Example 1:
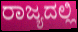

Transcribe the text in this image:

ರಾಜ್ಯದಲ್ಲಿ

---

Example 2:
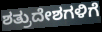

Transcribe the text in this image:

ಶತ್ರುದೇಶಗಳಿಗೆ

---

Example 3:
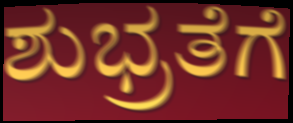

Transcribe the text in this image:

ಶುಭ್ರತೆಗೆ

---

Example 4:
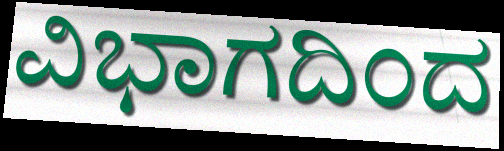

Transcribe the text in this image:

ವಿಭಾಗದಿಂದ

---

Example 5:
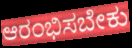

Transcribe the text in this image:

ಆರಂಭಿಸಬೇಕು